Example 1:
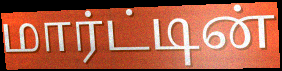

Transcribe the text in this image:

மார்ட்டின்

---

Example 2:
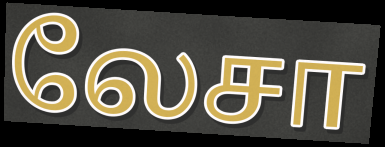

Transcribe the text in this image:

லேசா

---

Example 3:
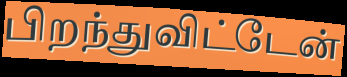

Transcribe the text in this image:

பிறந்துவிட்டேன்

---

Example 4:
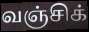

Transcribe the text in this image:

வஞ்சிக்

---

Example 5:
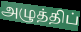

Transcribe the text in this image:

அழுத்திப்